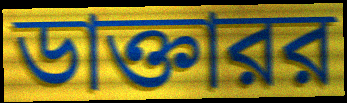
ডাক্তারর